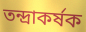
তন্দ্রাকর্ষক